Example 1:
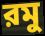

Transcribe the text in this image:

রমু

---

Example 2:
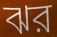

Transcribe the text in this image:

ঝর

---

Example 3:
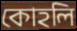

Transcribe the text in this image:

কোহলি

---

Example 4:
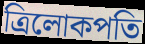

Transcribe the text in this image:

ত্রিলোকপতি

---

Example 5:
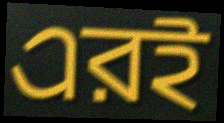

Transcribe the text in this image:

এরই